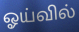
ஓய்வில்